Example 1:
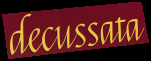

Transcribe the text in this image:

decussata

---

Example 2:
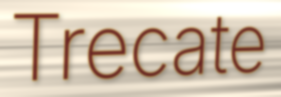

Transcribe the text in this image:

Trecate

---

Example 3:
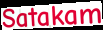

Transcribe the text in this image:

Satakam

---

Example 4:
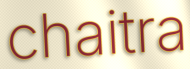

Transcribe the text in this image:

chaitra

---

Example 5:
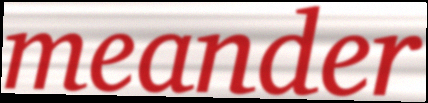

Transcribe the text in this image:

meander